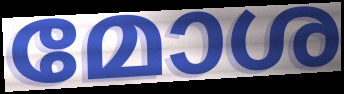
മോശ